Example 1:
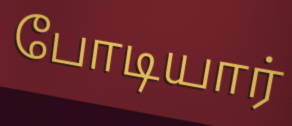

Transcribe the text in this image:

போடியார்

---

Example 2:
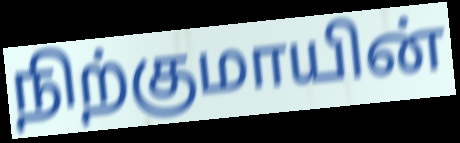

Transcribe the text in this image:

நிற்குமாயின்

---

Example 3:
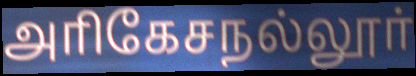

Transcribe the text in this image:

அரிகேசநல்லூர்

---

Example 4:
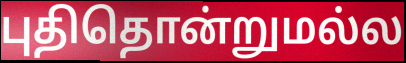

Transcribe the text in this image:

புதிதொன்றுமல்ல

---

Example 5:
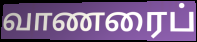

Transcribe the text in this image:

வாணரைப்